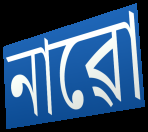
নাৱো